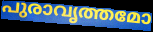
പുരാവൃത്തമോ